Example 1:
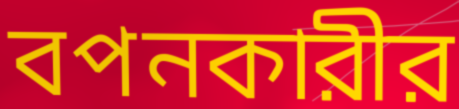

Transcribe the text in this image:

বপনকারীর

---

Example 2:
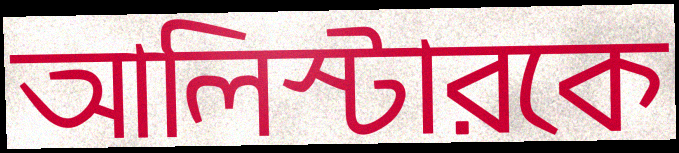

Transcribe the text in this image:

আলিস্টারকে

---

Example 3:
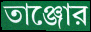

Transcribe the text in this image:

তাঞ্জোর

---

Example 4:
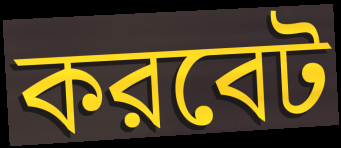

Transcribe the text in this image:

করবেট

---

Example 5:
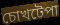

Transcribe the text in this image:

চোখটেপা